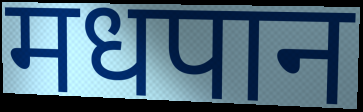
मधपान